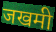
जखमी